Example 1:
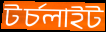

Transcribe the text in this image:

টর্চলাইট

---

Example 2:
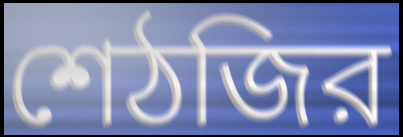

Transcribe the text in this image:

শেঠজির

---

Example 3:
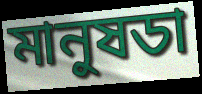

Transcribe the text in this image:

মানুষডা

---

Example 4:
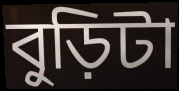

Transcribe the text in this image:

বুড়িটা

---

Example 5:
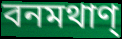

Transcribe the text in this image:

বনমথাণ্